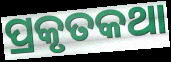
ପ୍ରକୃତକଥା